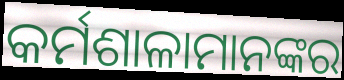
କର୍ମଶାଳାମାନଙ୍କର